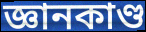
জ্ঞানকাণ্ড